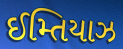
ઈમ્તિયાઝ